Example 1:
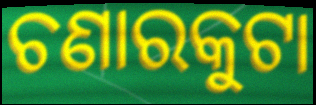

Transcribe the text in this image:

ଚଣାରକୁଟା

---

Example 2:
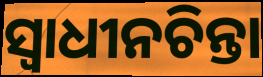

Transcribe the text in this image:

ସ୍ଵାଧୀନଚିନ୍ତା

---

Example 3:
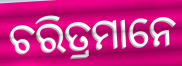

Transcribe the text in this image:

ଚରିତ୍ରମାନେ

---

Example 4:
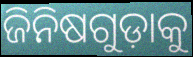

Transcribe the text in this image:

ଜିନିଷଗୁଡ଼ାକୁ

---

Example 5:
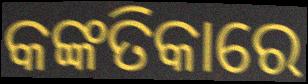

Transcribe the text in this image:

କଙ୍କତିକାରେ